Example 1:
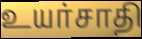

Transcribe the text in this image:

உயர்சாதி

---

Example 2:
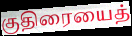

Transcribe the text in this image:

குதிரையைத்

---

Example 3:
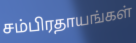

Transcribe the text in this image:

சம்பிரதாயங்கள்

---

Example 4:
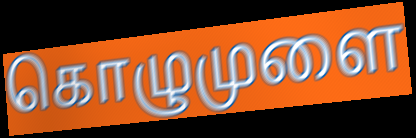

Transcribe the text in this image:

கொழுமுளை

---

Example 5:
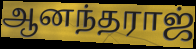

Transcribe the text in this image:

ஆனந்தராஜ்